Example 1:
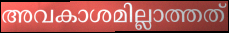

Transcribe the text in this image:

അവകാശമില്ലാത്തത്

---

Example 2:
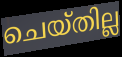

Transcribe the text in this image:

ചെയ്തില്ല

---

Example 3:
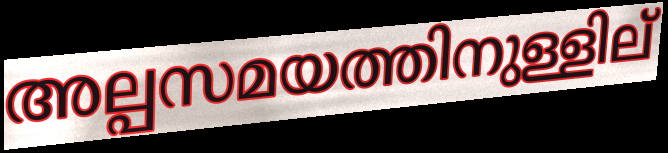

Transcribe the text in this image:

അല്പസമയത്തിനുള്ളില്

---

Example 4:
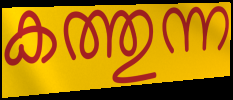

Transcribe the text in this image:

കത്തുന്ന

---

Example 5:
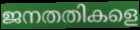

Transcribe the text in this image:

ജനതതികളെ